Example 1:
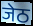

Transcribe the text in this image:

जेठ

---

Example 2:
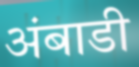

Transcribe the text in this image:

अंबाडी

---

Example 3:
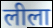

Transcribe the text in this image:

लीला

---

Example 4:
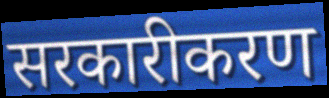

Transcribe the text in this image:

सरकारीकरण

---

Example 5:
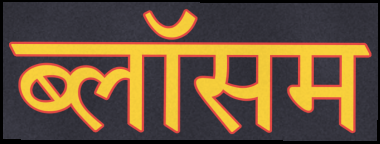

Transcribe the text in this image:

ब्लॉसम